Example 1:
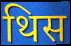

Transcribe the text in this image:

थिस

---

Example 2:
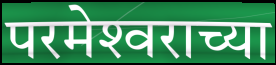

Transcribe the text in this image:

परमेश्‍वराच्या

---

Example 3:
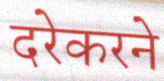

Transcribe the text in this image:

दरेकरने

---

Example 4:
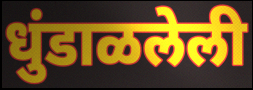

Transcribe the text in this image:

धुंडाळलेली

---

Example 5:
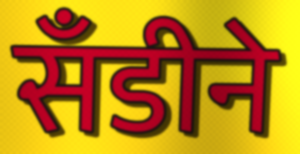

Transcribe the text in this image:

सॅंडीने